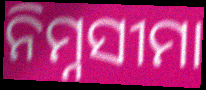
ନିମ୍ନସୀମା